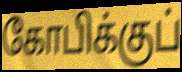
கோபிக்குப்